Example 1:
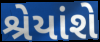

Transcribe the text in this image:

શ્રેયાંશે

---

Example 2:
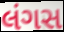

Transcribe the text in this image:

લંગસ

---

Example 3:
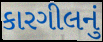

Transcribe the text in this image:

કારગીલનું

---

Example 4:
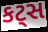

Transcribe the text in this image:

કટ્સ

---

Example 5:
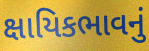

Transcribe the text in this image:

ક્ષાયિકભાવનું